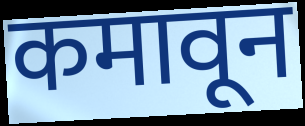
कमावून